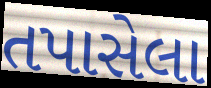
તપાસેલા